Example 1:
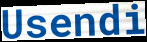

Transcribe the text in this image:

Usendi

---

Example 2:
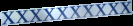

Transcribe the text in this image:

xxxxxxxxxx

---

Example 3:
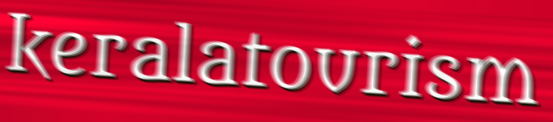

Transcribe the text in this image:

keralatourism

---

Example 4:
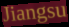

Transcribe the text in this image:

Jiangsu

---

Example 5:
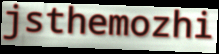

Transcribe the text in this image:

jsthemozhi